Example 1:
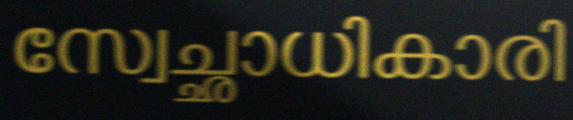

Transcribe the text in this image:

സ്വേച്ഛാധികാരി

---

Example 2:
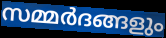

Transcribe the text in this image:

സമ്മർദങ്ങളും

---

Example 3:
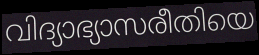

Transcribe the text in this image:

വിദ്യാഭ്യാസരീതിയെ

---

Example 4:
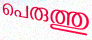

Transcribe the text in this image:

പെരുത്തു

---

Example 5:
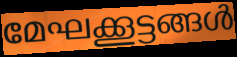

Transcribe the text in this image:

മേഘക്കൂട്ടങ്ങൾ